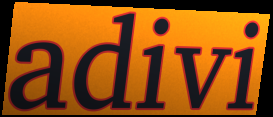
adivi